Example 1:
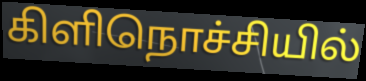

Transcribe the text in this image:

கிளிநொச்சியில்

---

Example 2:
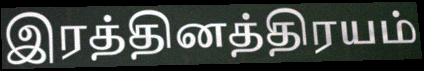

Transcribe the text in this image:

இரத்தினத்திரயம்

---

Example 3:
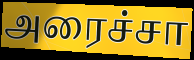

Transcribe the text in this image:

அரைச்சா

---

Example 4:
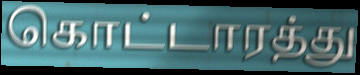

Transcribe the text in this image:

கொட்டாரத்து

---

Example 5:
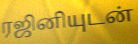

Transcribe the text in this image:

ரஜினியுடன்